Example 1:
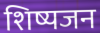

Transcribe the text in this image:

शिष्यजन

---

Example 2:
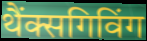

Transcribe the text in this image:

थैंक्सगिविंग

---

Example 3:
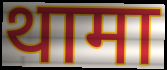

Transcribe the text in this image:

थामा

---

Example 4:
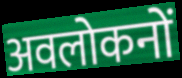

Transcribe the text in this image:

अवलोकनों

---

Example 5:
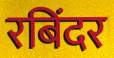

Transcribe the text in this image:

रबिंदर